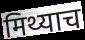
मिथ्याच